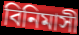
বিনিমাসী